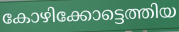
കോഴിക്കോട്ടെത്തിയ